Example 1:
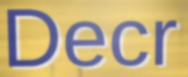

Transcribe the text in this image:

Decr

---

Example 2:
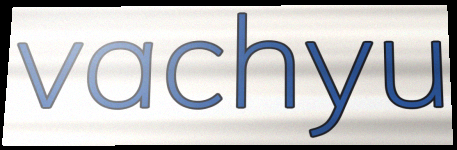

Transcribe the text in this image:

vachyu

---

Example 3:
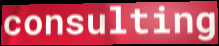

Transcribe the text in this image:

consulting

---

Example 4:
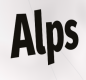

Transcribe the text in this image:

Alps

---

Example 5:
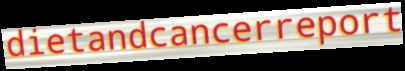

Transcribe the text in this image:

dietandcancerreport